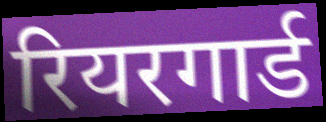
रियरगार्ड